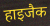
हाइजैक